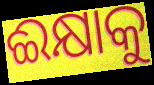
ଈକ୍ଷାକୁ